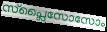
സ്പ്ലൈസോസോം